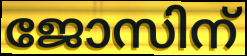
ജോസിന്